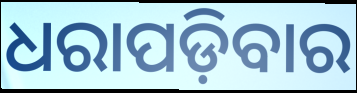
ଧରାପଡ଼ିବାର